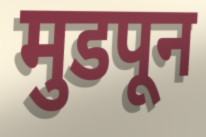
मुडपून